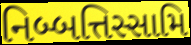
નિબ્બત્તિસ્સામિ